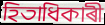
হিতাধিকাৰী